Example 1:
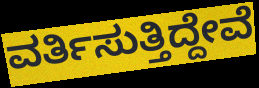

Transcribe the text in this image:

ವರ್ತಿಸುತ್ತಿದ್ದೇವೆ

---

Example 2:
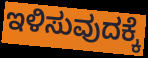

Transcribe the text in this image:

ಇಳಿಸುವುದಕ್ಕೆ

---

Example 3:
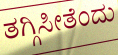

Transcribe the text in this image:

ತಗ್ಗಿಸೀತೆಂದು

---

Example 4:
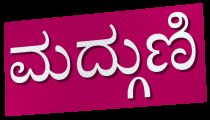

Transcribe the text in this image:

ಮದ್ಗುಣಿ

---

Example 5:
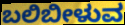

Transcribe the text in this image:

ಬಲಿಬೀಳುವ